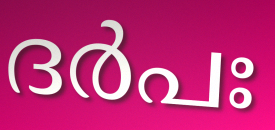
ദർപഃ